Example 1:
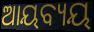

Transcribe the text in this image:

ଆୟବ୍ୟୟ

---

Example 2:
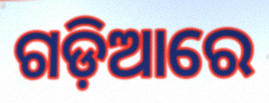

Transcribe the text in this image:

ଗଡ଼ିଆରେ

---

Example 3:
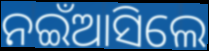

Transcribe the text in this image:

ନଇଁଆସିଲେ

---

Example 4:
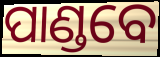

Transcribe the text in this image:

ପାଣ୍ଡବେ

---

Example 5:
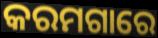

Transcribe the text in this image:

କରମଗାରେ